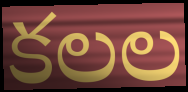
కలల